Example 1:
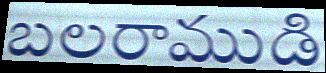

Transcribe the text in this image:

బలరాముడి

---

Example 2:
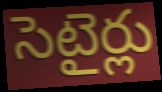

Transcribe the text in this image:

సెటైర్లు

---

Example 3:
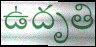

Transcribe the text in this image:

ఉదృతి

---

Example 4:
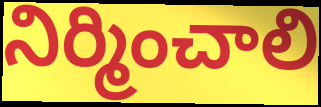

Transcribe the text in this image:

నిర్మించాలి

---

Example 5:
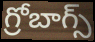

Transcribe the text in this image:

గ్రోబాగ్స్